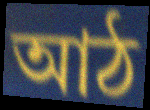
আঠ